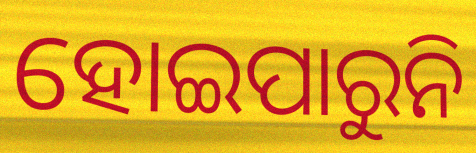
ହୋଇପାରୁନି